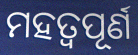
ମହତ୍ୱପୂର୍ଣ